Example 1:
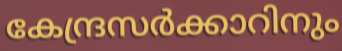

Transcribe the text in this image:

കേന്ദ്രസർക്കാറിനും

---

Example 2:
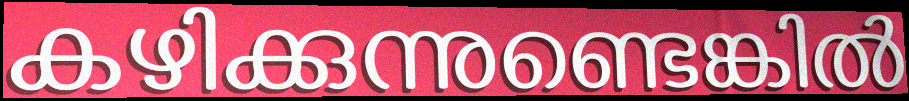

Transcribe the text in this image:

കഴിക്കുന്നുണ്ടെങ്കിൽ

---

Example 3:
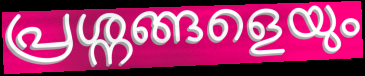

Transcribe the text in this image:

പ്രശ്നങ്ങളെയും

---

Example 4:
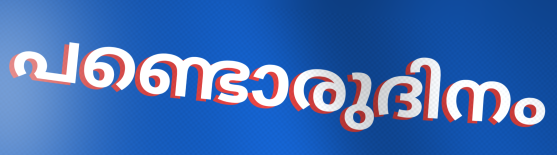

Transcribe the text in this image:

പണ്ടൊരുദിനം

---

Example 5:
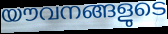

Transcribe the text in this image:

യൗവനങ്ങളുടെ